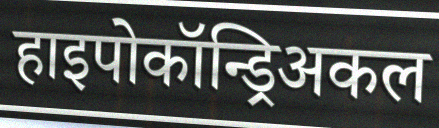
हाइपोकॉन्ड्रिअकल